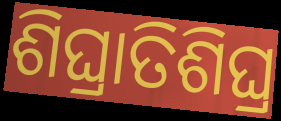
ଶିଘ୍ରାତିଶିଘ୍ର